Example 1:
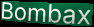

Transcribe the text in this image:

Bombax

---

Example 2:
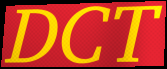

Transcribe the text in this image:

DCT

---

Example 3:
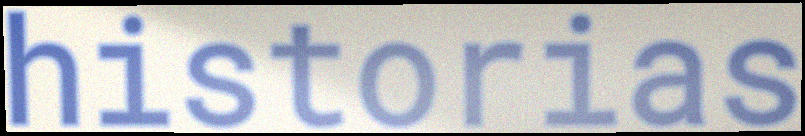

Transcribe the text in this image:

historias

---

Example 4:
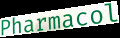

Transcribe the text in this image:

Pharmacol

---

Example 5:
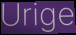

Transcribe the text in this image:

Urige